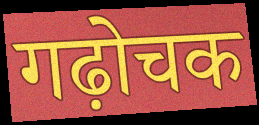
गढ़ोचक